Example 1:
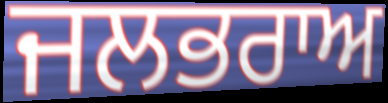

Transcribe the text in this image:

ਜਲਭਰਾਅ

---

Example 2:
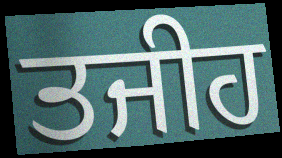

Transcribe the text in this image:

ਤਜੀਹ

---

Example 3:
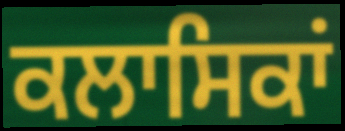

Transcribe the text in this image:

ਕਲਾਸਿਕਾਂ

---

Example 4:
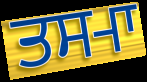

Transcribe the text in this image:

ਤਸ੍ਮਾ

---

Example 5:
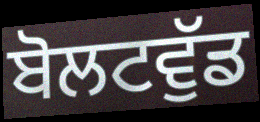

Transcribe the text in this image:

ਬੋਲਟਵੁੱਡ